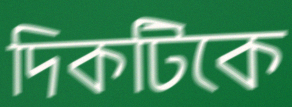
দিকটিকে